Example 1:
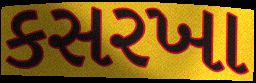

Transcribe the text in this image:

કસરખા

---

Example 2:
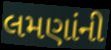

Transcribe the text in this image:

લમણાંની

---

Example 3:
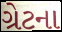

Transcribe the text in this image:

ગ્રેટના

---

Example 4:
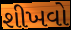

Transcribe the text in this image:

શીખવો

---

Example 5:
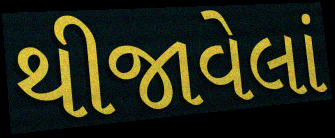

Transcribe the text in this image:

થીજાવેલાં